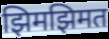
झिमझिमत